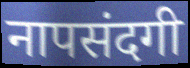
नापसंदगी